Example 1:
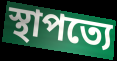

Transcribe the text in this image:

স্থাপত্যে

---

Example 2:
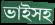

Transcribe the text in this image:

ভাইসহ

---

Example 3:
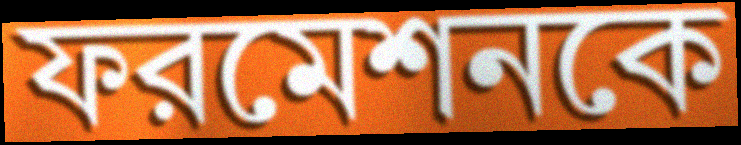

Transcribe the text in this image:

ফরমেশনকে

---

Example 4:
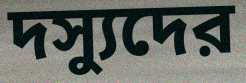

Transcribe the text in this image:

দস্যুদের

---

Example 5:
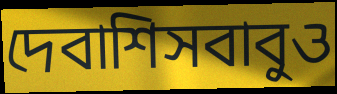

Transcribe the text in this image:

দেবাশিসবাবুও